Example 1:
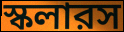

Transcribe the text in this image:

স্কলারস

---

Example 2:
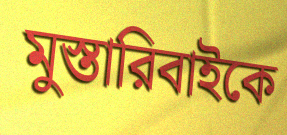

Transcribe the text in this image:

মুস্তারিবাইকে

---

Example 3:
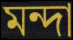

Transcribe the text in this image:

মন্দা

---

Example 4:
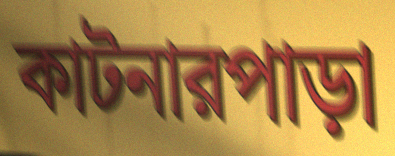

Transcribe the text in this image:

কাটনারপাড়া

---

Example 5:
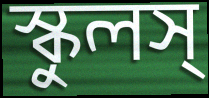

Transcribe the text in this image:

স্কুলস্